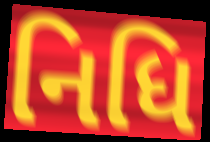
નિધિ